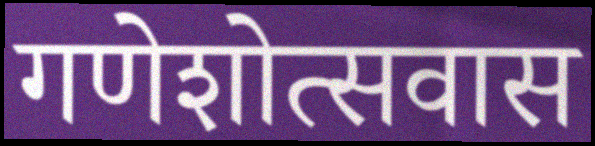
गणेशोत्सवास